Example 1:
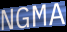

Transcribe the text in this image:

NGMA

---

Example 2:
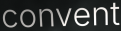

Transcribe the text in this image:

convent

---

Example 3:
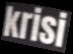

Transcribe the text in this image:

krisi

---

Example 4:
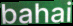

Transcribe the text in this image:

bahai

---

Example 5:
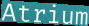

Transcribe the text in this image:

Atrium